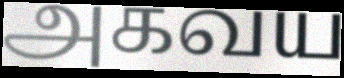
அகவய